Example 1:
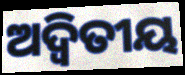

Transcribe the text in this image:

ଅଦ୍ବିତୀୟ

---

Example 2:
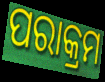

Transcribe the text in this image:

ପରାକ୍ରମ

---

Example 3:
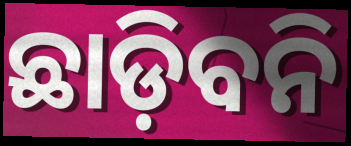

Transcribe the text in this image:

ଛାଡ଼ିବନି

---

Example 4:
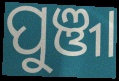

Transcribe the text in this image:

ପୁଞ୍ଜା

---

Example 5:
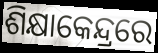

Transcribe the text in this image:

ଶିକ୍ଷାକେନ୍ଦ୍ରରେ